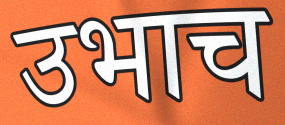
उभाच